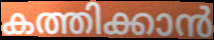
കത്തിക്കാൻ